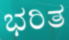
ಭರಿತ